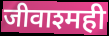
जीवाश्मही